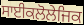
ਸਾਈਕਲੋਲੇਜਿਕ